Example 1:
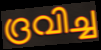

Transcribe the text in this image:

ദ്രവിച്ച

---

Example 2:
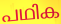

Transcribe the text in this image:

പഥിക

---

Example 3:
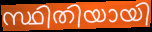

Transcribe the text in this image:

സ്ഥിതിയായി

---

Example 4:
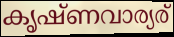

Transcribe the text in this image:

കൃഷ്ണവാര്യര്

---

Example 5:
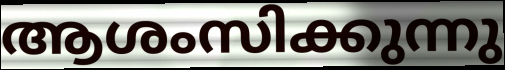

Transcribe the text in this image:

ആശംസിക്കുന്നു